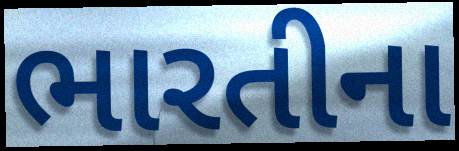
ભારતીના